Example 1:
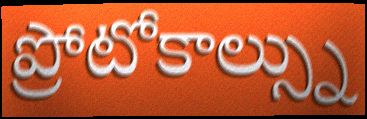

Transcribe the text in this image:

ప్రోటోకాల్స్ను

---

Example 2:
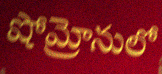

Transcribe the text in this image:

షోమ్రోనులో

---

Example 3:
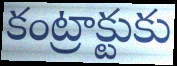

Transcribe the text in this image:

కంట్రాక్టుకు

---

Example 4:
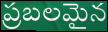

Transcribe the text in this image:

ప్రబలమైన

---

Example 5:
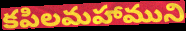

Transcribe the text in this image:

కపిలమహాముని